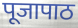
पूजापाठ